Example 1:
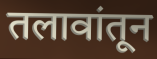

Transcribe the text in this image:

तलावांतून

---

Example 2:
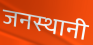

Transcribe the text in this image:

जनस्थानी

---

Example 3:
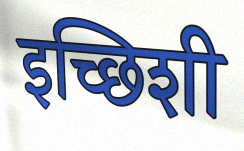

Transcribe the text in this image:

इच्छिशी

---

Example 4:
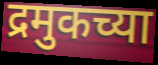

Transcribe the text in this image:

द्रमुकच्या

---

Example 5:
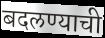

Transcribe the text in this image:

बदलण्याची